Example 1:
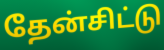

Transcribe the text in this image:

தேன்சிட்டு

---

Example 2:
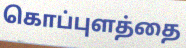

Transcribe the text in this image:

கொப்புளத்தை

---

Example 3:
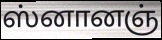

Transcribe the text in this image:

ஸ்னானஞ்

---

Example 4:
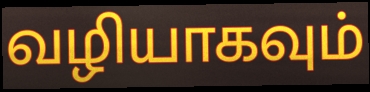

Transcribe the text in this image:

வழியாகவும்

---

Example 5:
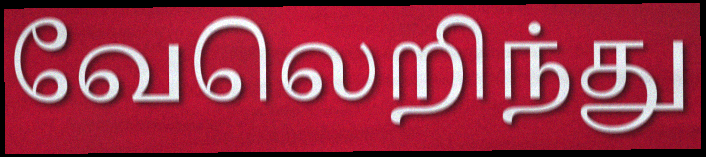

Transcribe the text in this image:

வேலெறிந்து